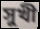
সুখী